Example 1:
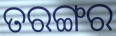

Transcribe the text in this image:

ତରଙ୍ଗର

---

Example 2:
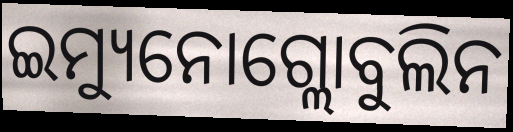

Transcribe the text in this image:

ଇମ୍ୟୁନୋଗ୍ଲୋବୁଲିନ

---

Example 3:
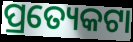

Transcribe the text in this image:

ପ୍ରତ୍ୟେକଟା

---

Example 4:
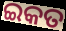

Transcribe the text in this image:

ଇକତ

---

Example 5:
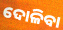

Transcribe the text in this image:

ଦୋଳିବା